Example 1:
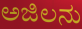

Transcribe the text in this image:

ಅಜಿಲನು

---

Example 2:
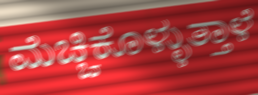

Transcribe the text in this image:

ಮೆಚ್ಚಿಕೊಳ್ಳುತ್ತಾಳೆ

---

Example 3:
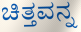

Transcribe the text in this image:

ಚಿತ್ತವನ್ನ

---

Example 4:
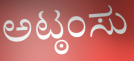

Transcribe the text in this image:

ಅಟ್ಠಂಸು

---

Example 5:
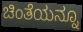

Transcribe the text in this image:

ಚಿಂತೆಯನ್ನೂ